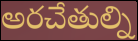
అరచేతుల్ని